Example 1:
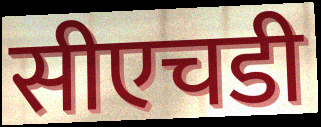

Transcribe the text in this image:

सीएचडी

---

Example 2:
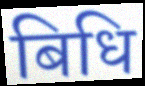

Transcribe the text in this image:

बिधि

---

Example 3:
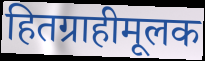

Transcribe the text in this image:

हितग्राहीमूलक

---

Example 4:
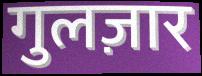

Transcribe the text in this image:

गुलज़ार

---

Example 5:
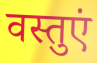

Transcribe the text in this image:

वस्तुएं